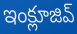
ఇంక్లూజివ్